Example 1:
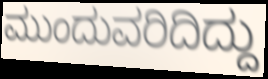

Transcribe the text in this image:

ಮುಂದುವರಿದಿದ್ದು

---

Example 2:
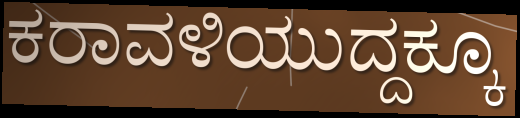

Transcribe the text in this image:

ಕರಾವಳಿಯುದ್ದಕ್ಕೂ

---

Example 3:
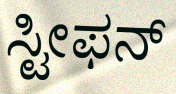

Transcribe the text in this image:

ಸ್ಟೀಫನ್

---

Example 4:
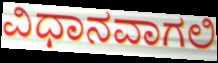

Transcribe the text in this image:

ವಿಧಾನವಾಗಲಿ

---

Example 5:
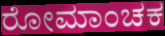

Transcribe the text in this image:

ರೋಮಾಂಚಕ